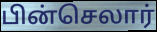
பின்செலார்